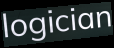
logician